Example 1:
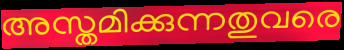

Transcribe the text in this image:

അസ്തമിക്കുന്നതുവരെ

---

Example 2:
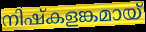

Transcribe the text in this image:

നിഷ്കളങ്കമായ്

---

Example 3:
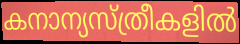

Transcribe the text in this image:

കനാന്യസ്ത്രീകളിൽ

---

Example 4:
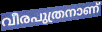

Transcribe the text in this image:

വീരപുത്രനാണ്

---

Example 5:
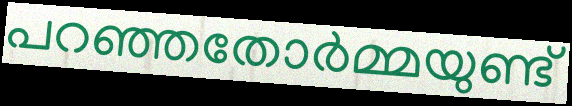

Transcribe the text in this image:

പറഞ്ഞതോർമ്മയുണ്ട്